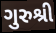
ગુરુશ્રી